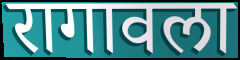
रागावला